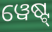
ୱେଷ୍ଟ୍